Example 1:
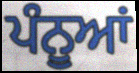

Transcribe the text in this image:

ਪੰਨੂਆਂ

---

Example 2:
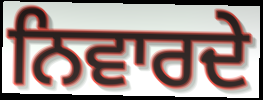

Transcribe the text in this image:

ਨਿਵਾਰਦੇ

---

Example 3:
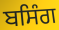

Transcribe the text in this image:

ਬਸਿੰਗ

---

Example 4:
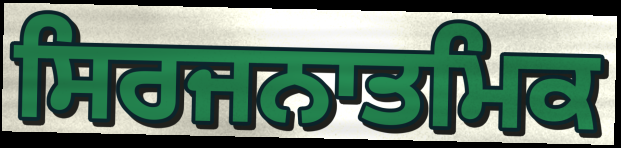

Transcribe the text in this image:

ਸਿਰਜਨਾਤਮਿਕ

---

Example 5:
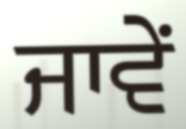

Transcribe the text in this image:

ਜਾਵੇਂ